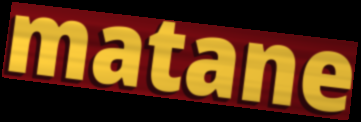
matane